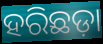
ହରିଛଡ଼ା